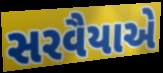
સરવૈયાએ